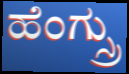
ಹೆಂಗ್ಸ್ರು